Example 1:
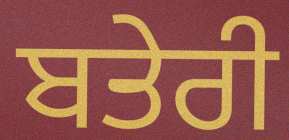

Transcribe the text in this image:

ਬਤੇਰੀ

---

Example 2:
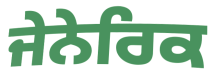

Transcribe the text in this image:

ਜੇਨੇਰਿਕ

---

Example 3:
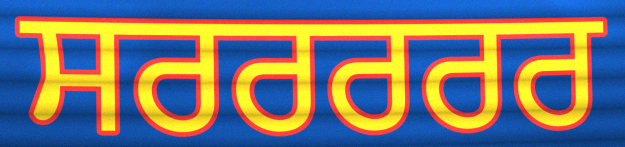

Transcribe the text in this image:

ਸਰਰਰਰਰ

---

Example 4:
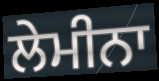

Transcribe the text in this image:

ਲੇਮੀਨਾ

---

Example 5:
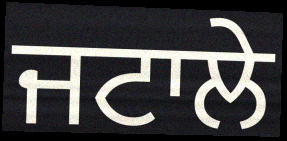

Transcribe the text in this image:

ਜਟਾਲੇ